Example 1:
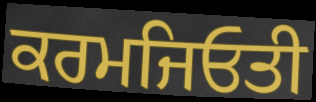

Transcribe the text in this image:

ਕਰਮਜਿਓਤੀ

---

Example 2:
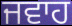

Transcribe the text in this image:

ਜਵਾਹ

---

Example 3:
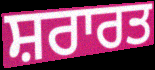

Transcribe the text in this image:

ਸ਼ਰਾਰਤ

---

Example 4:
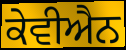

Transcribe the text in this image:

ਕੇਵੀਐਨ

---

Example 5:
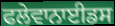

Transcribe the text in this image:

ਫਲੇਵਾਨਾਈਡਸ